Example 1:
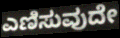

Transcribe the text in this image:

ಎಣಿಸುವುದೇ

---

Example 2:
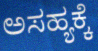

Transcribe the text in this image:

ಅಸಹ್ಯಕ್ಕೆ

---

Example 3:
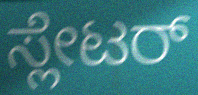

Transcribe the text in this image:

ಸ್ಲೇಟರ್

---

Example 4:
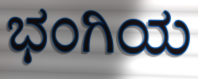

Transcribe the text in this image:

ಭಂಗಿಯ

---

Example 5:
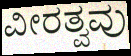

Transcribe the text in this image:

ವೀರತ್ವವು